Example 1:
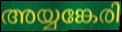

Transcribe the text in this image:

അയ്യങ്കേരി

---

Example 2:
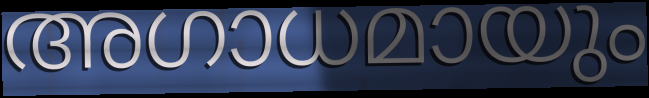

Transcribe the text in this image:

അഗാധമായും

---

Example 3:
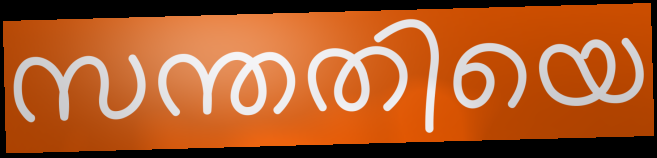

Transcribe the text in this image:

സന്തതിയെ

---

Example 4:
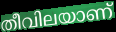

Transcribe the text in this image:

തീവിലയാണ്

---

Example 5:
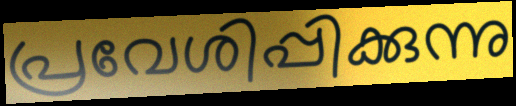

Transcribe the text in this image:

പ്രവേശിപ്പിക്കുന്നു